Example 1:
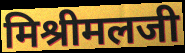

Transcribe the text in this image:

मिश्रीमलजी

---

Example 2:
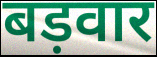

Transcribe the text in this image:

बड़वार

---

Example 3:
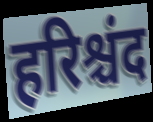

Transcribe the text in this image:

हरिश्चंद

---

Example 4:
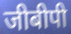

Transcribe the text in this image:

जीबीपी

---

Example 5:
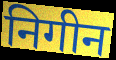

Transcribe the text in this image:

निगीन